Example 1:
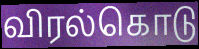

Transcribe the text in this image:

விரல்கொடு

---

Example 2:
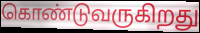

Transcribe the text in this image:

கொண்டுவருகிறது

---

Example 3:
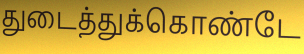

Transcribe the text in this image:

துடைத்துக்கொண்டே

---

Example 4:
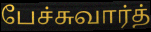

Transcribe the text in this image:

பேச்சுவார்த்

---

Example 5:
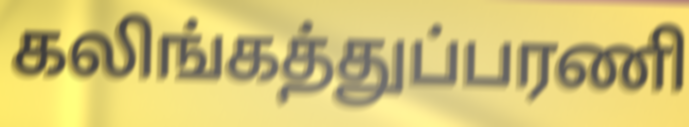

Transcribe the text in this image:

கலிங்கத்துப்பரணி